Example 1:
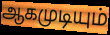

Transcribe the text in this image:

ஆகமுடியும்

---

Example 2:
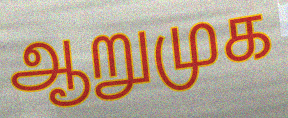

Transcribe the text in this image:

ஆறுமுக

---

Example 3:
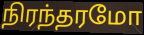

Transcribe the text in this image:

நிரந்தரமோ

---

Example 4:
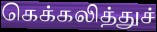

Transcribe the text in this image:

கெக்கலித்துச்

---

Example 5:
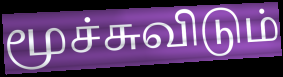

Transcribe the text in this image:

மூச்சுவிடும்